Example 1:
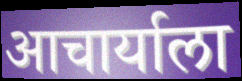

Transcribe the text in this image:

आचार्याला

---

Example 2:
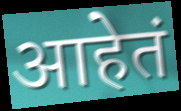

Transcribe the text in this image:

आहेतं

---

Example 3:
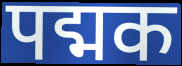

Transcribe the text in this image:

पद्मक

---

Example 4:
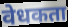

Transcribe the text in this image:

वेधकता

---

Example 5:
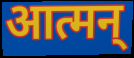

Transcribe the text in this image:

आत्मन्